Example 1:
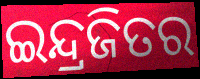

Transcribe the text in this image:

ଇନ୍ଦ୍ରଜିତର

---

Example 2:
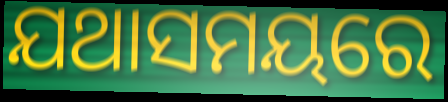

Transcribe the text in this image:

ଯଥାସମୟରେ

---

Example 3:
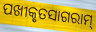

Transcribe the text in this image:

ପଖୀକୃତସାଗରାମ୍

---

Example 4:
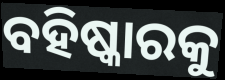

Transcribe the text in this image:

ବହିଷ୍କାରକୁ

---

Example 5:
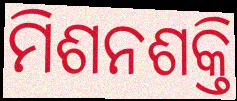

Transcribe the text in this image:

ମିଶନଶକ୍ତି